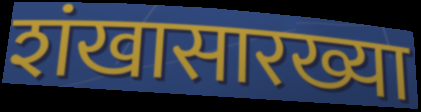
शंखासारख्या